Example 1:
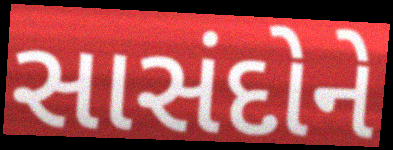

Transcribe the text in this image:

સાસંદોને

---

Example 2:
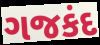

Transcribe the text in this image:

ગજકંદ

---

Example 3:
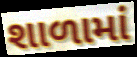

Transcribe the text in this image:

શાળામાં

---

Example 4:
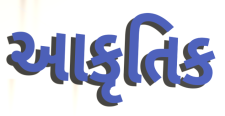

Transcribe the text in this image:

આકૃતિક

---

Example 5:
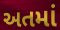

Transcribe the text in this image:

અતમાં